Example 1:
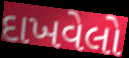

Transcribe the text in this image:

દાખવેલો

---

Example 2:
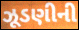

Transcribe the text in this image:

ઝૂડણીની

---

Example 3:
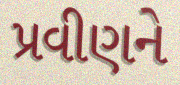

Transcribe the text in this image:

પ્રવીણને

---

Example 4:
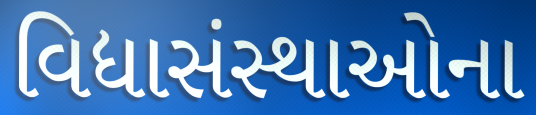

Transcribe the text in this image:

વિદ્યાસંસ્થાઓના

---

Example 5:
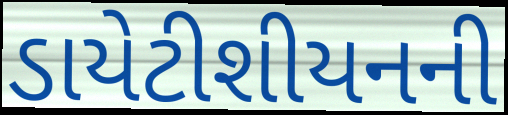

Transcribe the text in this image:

ડાયેટીશીયનની